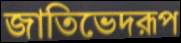
জাতিভেদরূপ